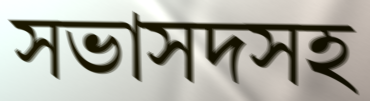
সভাসদসহ